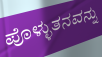
ಪೊಳ್ಳುತನವನ್ನು